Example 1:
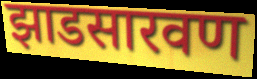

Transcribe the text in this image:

झाडसारवण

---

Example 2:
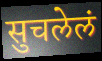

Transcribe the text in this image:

सुचलेलं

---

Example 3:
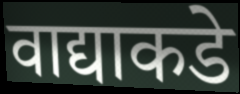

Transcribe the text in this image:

वाद्याकडे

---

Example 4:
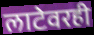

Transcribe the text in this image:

लाटेवरही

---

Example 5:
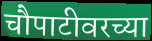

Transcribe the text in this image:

चौपाटीवरच्या